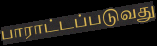
பாராட்டப்படுவது